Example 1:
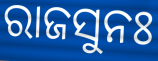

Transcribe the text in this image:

ରାଜସୁନଃ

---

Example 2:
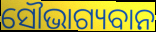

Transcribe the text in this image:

ସୌଭାଗ୍ୟବାନ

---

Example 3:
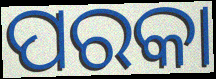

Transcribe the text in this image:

ପରକା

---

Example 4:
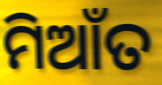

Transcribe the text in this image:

ମିଆଁତ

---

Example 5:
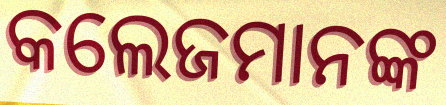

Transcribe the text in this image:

କଲେଜମାନଙ୍କ